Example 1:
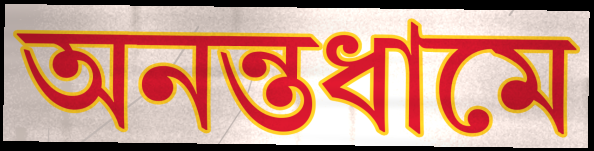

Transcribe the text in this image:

অনন্তধামে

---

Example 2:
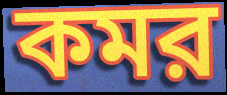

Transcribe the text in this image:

কমর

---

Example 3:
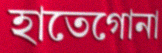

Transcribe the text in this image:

হাতেগোনা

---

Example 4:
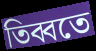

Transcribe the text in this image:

তিব্বতে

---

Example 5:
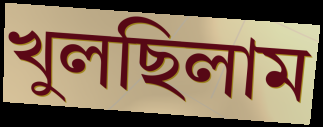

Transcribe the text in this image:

খুলছিলাম